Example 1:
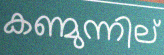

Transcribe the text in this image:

കണ്മുന്നില്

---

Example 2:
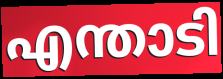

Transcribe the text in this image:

എന്താടി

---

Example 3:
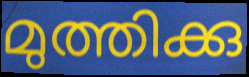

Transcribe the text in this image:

മുത്തിക്കു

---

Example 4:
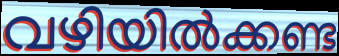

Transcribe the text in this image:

വഴിയിൽക്കണ്ട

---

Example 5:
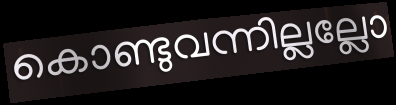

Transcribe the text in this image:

കൊണ്ടുവന്നില്ലല്ലോ